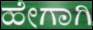
ಹೇಗಾಗಿ